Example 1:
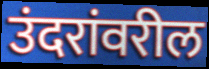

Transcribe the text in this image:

उंदरांवरील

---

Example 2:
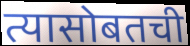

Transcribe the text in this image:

त्यासोबतची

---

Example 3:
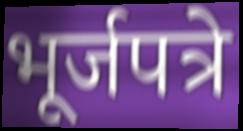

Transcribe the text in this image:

भूर्जपत्रे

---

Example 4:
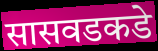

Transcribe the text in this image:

सासवडकडे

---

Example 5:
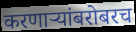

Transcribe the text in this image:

करणाऱ्यांबरोबरच